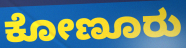
ಕೋಣೂರು